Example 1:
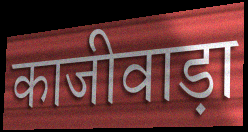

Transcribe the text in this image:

काजीवाड़ा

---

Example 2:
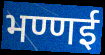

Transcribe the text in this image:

भण्णई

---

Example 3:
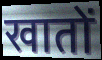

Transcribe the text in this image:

खातों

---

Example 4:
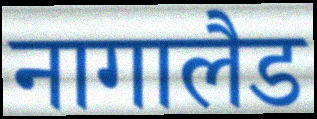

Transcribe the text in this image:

नागालैड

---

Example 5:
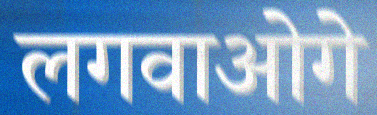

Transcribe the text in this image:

लगवाओगे